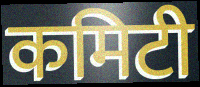
कमिटी